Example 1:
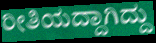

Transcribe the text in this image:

ರೀತಿಯದ್ದಾಗಿದ್ದು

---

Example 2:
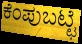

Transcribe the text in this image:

ಕೆಂಪುಬಟ್ಟೆ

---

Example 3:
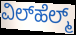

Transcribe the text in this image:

ವಿಲ್‌ಹೆಲ್ಮ್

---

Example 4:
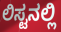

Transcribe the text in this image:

ಲಿಸ್ಟನಲ್ಲಿ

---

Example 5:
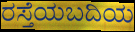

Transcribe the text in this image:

ರಸ್ತೆಯಬದಿಯ